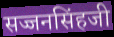
सज्जनसिंहजी